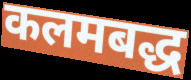
कलमबद्ध